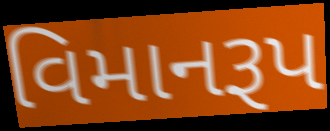
વિમાનરૂપ